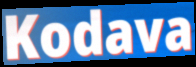
Kodava